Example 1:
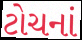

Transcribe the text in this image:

ટોચનાં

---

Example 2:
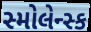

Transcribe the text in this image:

સ્મોલેન્સ્ક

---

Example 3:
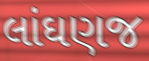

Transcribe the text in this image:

લાંઘણજ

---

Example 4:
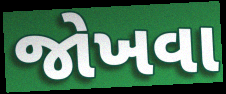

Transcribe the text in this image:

જોખવા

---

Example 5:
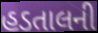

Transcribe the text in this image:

હડતાલની